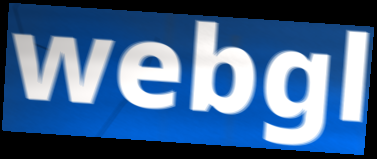
webgl